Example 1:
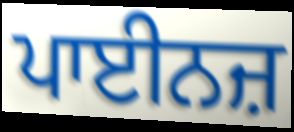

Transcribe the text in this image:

ਪਾਈਨਜ਼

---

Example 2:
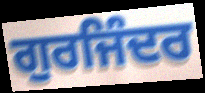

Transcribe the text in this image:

ਗੁਰਜਿੰਦਰ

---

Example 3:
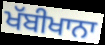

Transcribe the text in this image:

ਖੱਬੀਖਾਨਾ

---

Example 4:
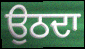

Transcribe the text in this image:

ਉਠਦਾ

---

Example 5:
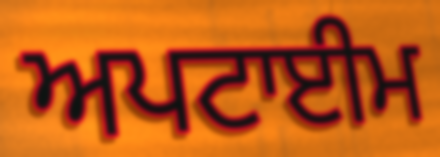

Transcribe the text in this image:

ਅਪਟਾਈਮ